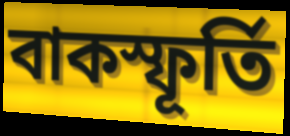
বাকস্ফূর্তি